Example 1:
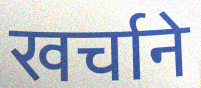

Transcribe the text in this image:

खर्चाने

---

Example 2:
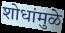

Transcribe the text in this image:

शोधांमुळे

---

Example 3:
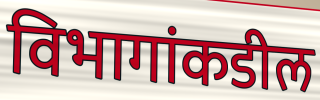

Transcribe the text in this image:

विभागांकडील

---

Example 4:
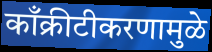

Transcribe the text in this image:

काँक्रीटीकरणामुळे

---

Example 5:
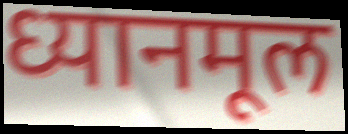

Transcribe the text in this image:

ध्यानमूल